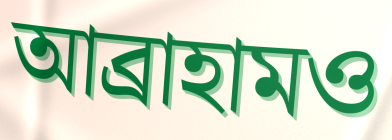
আব্রাহামও